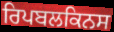
ਰਿਪਬਲਕਿਨਸ